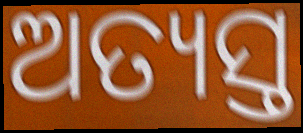
ଅତ୍ୟସ୍ତ